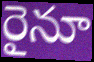
రైనూ